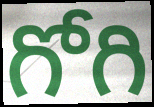
గోగి